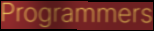
Programmers